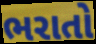
ભરાતો